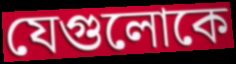
যেগুলোকে